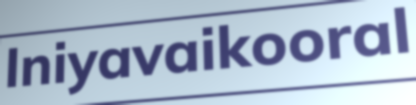
Iniyavaikooral